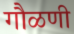
गौळणी